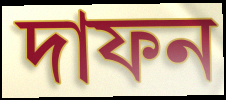
দাফন